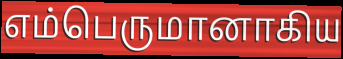
எம்பெருமானாகிய